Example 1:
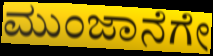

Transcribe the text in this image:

ಮುಂಜಾನೆಗೇ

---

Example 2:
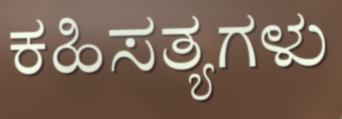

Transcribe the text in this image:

ಕಹಿಸತ್ಯಗಳು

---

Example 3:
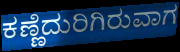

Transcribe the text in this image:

ಕಣ್ಣೆದುರಿಗಿರುವಾಗ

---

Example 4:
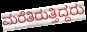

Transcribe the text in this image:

ಮರೆತಿರುತ್ತಿದ್ದರು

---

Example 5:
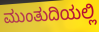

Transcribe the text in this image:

ಮುಂತುದಿಯಲ್ಲಿ